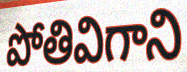
పోతివిగాని